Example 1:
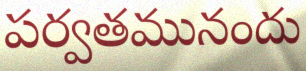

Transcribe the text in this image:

పర్వతమునందు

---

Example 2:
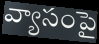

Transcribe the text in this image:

వ్యాసంపై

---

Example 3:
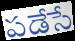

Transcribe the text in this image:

పడేసే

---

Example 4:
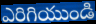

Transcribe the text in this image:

ఎరిగియుండి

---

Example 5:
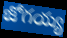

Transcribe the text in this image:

జోగయ్య